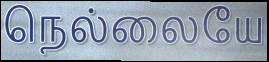
நெல்லையே